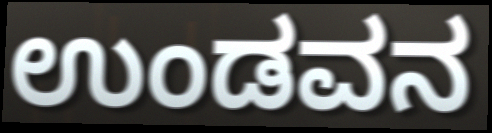
ಉಂಡವನ